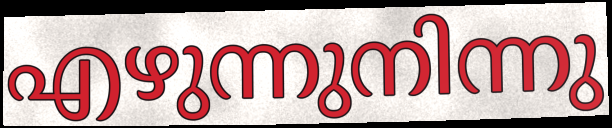
എഴുന്നുനിന്നു